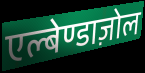
एल्बेण्डाज़ोल